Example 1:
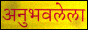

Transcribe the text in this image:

अनुभवलेला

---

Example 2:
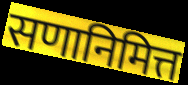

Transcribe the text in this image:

सणानिमित्त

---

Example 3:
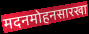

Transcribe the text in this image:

मदनमोहनसारखा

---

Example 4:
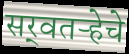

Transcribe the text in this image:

सर्वतऱ्हेचे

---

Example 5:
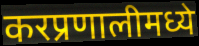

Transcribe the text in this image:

करप्रणालीमध्ये